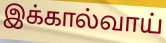
இக்கால்வாய்